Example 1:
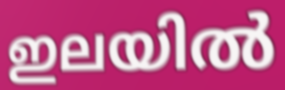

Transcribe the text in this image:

ഇലയിൽ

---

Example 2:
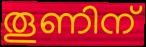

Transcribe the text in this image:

തൂണിന്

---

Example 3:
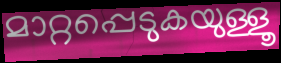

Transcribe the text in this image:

മാറ്റപ്പെടുകയുള്ളൂ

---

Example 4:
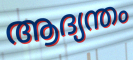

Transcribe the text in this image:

ആദ്യന്തം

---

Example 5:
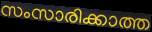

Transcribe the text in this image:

സംസാരിക്കാത്ത